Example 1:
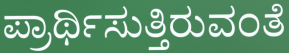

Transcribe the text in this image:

ಪ್ರಾರ್ಥಿಸುತ್ತಿರುವಂತೆ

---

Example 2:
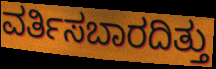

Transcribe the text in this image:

ವರ್ತಿಸಬಾರದಿತ್ತು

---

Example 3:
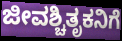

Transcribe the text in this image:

ಜೀವಶ್ಚಿತೃಕನಿಗೆ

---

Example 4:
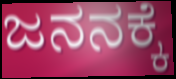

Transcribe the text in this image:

ಜನನಕ್ಕೆ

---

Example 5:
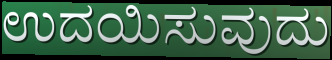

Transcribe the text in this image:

ಉದಯಿಸುವುದು